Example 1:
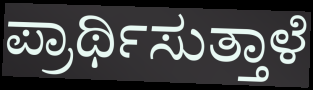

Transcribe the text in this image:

ಪ್ರಾರ್ಥಿಸುತ್ತಾಳೆ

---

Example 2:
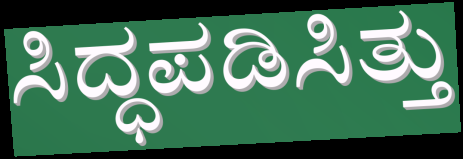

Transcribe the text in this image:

ಸಿದ್ಧಪಡಿಸಿತ್ತು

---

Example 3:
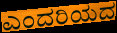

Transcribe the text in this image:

ಎಂದರಿಯದ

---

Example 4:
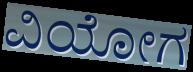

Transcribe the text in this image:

ವಿಯೋಗ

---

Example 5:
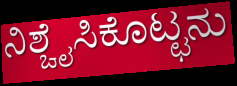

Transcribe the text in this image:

ನಿಶ್ಚೈಸಿಕೊಟ್ಟನು